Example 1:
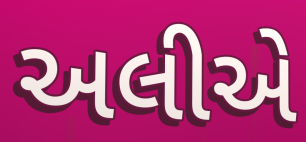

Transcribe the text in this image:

અલીએ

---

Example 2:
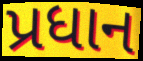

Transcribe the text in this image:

પ્રધાન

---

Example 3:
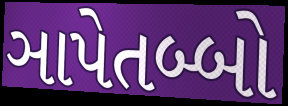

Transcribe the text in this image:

ઞાપેતબ્બો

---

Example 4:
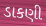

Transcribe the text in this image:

ડાકણી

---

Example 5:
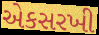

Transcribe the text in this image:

એકસરખી